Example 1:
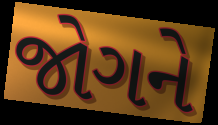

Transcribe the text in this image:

જોગને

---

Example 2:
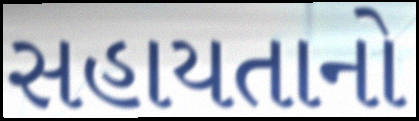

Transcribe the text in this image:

સહાયતાનો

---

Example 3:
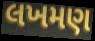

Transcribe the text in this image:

લખમણ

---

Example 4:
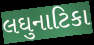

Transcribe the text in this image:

લઘુનાટિકા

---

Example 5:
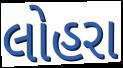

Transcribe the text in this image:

લોહરા